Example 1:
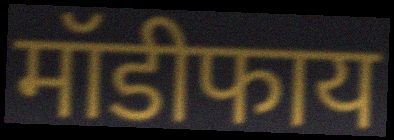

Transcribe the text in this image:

मॉडीफाय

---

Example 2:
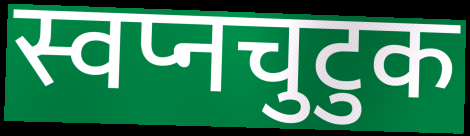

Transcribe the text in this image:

स्वप्नचुटुक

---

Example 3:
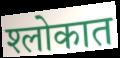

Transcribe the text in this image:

श्लोकात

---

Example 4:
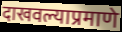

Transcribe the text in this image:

दाखवल्याप्रमाणे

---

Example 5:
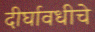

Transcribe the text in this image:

दीर्घावधीचे